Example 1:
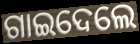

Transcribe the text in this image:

ଗାଇଦେଲେ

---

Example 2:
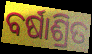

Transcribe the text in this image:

ବର୍ଷାଶ୍ରିତ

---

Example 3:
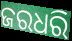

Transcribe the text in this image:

ଜରଧରି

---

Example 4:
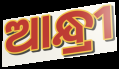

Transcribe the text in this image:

ଆନ୍ଧ୍ରୀ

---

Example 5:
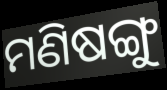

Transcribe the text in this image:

ମଣିଷଙ୍ଗୁ